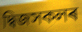
দ্বিজসকলৰ